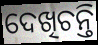
ଦେଖିଚନ୍ତି